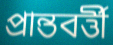
প্রান্তবর্ত্তী